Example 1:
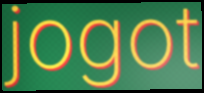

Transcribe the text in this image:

jogot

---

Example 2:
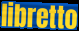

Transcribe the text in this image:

libretto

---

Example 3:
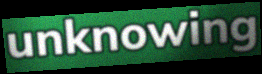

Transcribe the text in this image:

unknowing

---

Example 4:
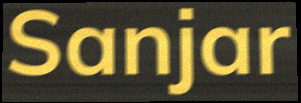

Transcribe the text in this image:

Sanjar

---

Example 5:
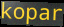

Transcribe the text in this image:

kopar